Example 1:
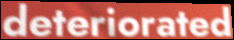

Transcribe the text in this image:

deteriorated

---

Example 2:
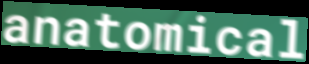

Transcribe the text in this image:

anatomical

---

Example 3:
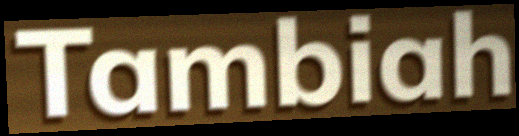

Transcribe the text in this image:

Tambiah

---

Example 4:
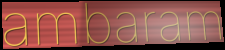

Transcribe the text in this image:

ambaram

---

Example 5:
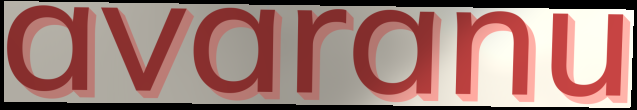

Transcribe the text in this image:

avaranu